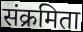
संक्रमिता